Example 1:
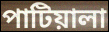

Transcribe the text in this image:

পাটিয়ালা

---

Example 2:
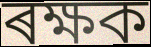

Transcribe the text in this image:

ৰক্ষক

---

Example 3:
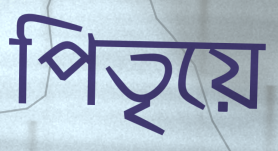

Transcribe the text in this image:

পিতৃয়ে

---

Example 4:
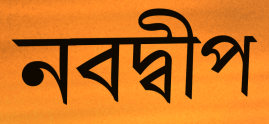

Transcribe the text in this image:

নবদ্বীপ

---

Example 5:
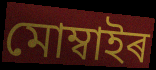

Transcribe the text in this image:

মোম্বাইৰ